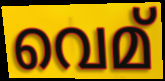
വെമ്